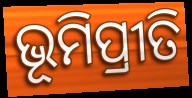
ଭୂମିପ୍ରୀତି